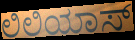
ಲಿಲಿಯಾಸ್